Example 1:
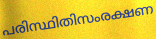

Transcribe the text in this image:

പരിസ്ഥിതിസംരക്ഷണ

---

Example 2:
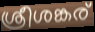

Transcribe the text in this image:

ശ്രീശങ്കര്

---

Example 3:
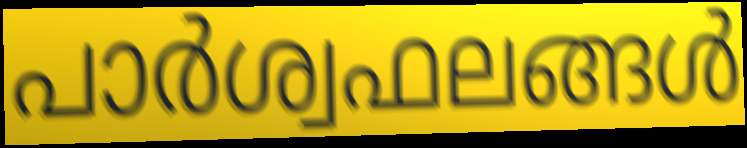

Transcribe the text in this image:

പാർശ്വഫലങ്ങൾ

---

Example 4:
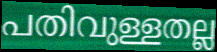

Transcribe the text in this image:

പതിവുള്ളതല്ല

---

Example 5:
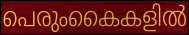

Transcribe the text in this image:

പെരുംകൈകളിൽ